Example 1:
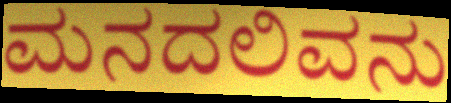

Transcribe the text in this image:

ಮನದಲಿವನು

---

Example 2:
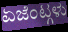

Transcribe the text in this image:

ಏಜೆಂಟ್ಗಳು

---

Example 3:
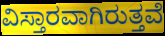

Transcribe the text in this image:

ವಿಸ್ತಾರವಾಗಿರುತ್ತವೆ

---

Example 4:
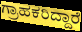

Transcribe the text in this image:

ಗ್ರಾಹಕರಿದ್ದಾರೆ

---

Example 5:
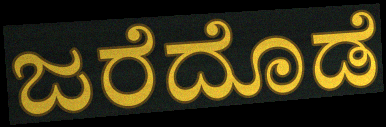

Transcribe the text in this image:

ಜರೆದೊಡೆ